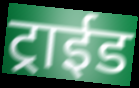
ट्राईड